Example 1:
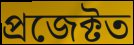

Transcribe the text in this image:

প্ৰজেক্টত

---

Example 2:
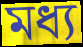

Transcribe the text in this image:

মধ্য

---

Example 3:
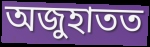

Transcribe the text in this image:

অজুহাতত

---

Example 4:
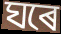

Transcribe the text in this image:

ঘৰে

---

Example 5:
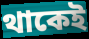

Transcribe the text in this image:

থাকেই